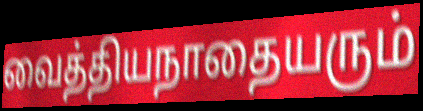
வைத்தியநாதையரும்